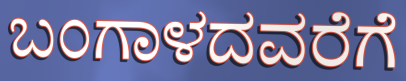
ಬಂಗಾಳದವರೆಗೆ